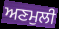
ਅਣਮੁਲੀ